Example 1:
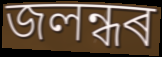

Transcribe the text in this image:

জলন্ধৰ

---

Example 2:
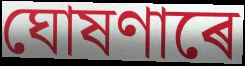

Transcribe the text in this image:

ঘোষণাৰে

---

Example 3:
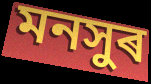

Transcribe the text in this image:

মনসুৰ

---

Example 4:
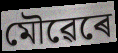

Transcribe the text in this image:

মৌৱেৰে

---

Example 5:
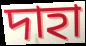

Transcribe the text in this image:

দাহা